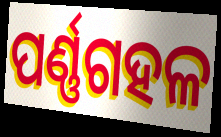
ପର୍ଣ୍ଣଗହଳ